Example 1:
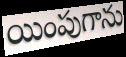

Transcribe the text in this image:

యింపుగాను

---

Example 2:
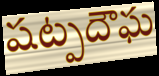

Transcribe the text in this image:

షట్పదౌఘ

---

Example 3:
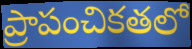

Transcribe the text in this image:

ప్రాపంచికతలో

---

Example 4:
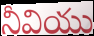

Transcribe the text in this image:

నీవియు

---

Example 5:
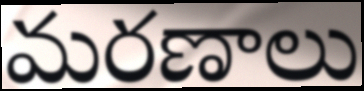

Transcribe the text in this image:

మరణాలు